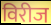
विरीज